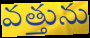
వత్తును